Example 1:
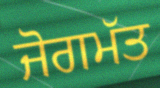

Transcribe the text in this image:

ਜੋਗਮੱਤ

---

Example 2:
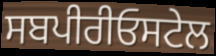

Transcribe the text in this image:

ਸਬਪੀਰੀਓਸਟੇਲ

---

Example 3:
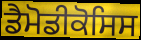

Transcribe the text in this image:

ਡੈਮੋਡੀਕੋਸਿਸ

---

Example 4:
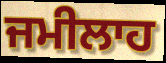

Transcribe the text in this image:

ਜਮੀਲਾਹ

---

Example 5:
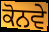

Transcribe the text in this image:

ਕੋਨਵੇ